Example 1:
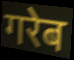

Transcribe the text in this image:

गरेब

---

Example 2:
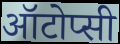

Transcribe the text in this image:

ऑटोप्सी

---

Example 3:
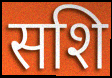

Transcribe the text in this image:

सशि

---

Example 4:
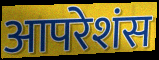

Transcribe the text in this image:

आपरेशंस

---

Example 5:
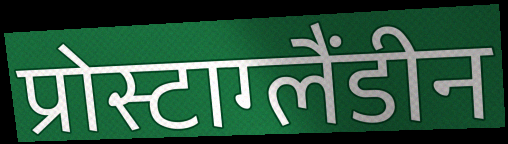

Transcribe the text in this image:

प्रोस्टाग्लैंडीन